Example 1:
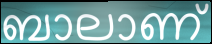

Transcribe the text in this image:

ബാലാണ്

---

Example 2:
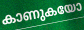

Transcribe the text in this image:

കാണുകയോ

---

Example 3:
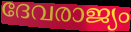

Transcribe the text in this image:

ദേവരാജ്യം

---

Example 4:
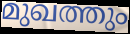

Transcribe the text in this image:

മുഖത്തും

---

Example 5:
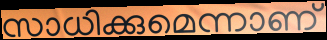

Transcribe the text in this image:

സാധിക്കുമെന്നാണ്